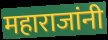
महाराजांनी